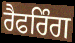
ਰੈਫਰਿੰਗ